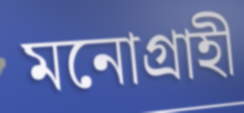
মনোগ্ৰাহী